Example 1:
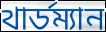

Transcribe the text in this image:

থার্ডম্যান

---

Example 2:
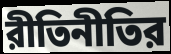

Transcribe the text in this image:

রীতিনীতির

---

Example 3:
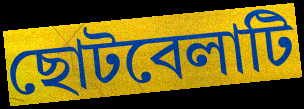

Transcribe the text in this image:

ছোটবেলাটি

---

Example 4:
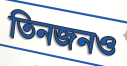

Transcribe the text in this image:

তিনজনও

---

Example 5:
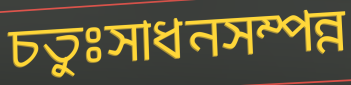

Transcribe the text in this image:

চতুঃসাধনসম্পন্ন